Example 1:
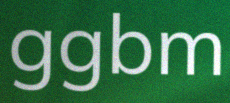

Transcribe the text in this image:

ggbm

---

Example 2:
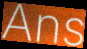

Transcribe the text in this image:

Ans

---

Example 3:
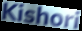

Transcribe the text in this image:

Kishori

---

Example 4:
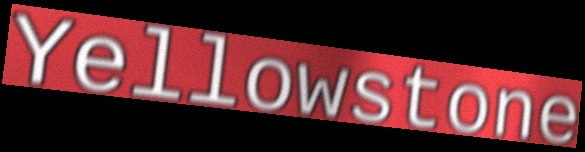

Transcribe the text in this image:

Yellowstone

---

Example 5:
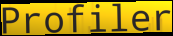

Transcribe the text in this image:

Profiler